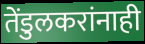
तेंडुलकरांनाही